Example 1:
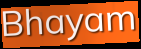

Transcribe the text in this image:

Bhayam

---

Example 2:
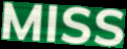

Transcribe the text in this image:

MISS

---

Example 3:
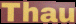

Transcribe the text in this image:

Thau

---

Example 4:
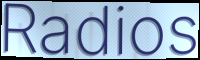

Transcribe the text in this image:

Radios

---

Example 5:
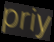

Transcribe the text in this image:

priy